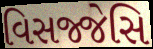
વિસજ્જેસિ